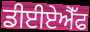
ਡੀਈਏਐੱਫ